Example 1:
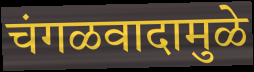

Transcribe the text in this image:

चंगळवादामुळे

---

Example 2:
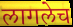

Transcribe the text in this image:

लागलेच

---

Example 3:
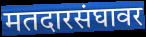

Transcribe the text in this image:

मतदारसंघावर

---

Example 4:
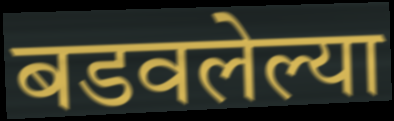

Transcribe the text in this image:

बडवलेल्या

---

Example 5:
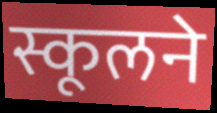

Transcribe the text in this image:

स्कूलने